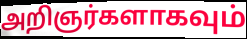
அறிஞர்களாகவும்